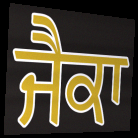
ਜੈਕਾ